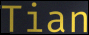
Tian